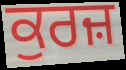
ਕੁਰਜ਼